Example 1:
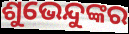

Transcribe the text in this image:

ଶୁଭେନ୍ଦୁଙ୍କର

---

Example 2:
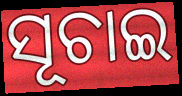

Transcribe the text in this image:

ସୂଚାଇ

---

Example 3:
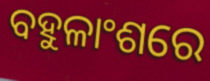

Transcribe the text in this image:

ବହୁଳାଂଶରେ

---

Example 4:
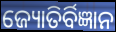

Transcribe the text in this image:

ଜ୍ୟୋତିର୍ବିଜ୍ଞାନ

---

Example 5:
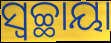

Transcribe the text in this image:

ସ୍ୱଚ୍ଛାୟା